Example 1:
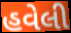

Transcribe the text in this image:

હવેલી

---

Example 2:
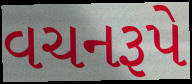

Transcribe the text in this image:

વચનરૂપે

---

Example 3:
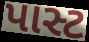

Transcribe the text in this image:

પાસ્ટ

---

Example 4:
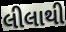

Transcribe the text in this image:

લીલાથી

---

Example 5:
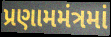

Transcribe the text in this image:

પ્રણામમંત્રમાં